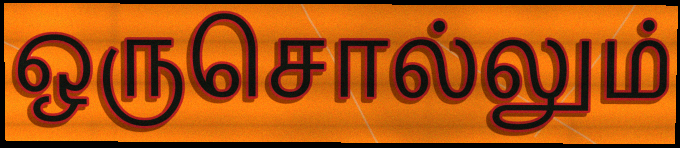
ஒருசொல்லும்